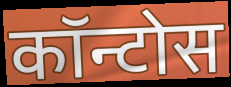
कॉन्टोस